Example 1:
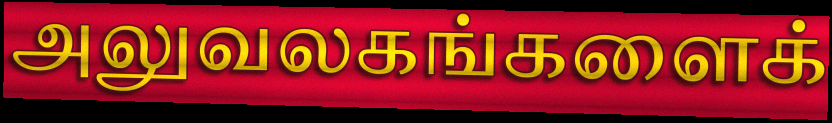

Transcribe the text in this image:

அலுவலகங்களைக்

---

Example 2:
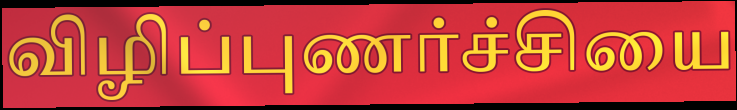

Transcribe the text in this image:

விழிப்புணர்ச்சியை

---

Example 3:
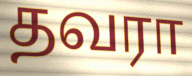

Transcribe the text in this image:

தவரா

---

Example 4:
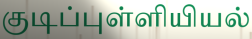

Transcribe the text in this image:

குடிப்புள்ளியியல்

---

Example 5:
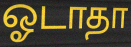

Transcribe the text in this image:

ஓடாதா